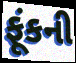
ફૂંકની